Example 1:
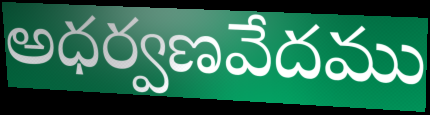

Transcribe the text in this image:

అధర్వణవేదము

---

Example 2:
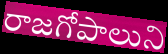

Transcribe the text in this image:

రాజగోపాలుని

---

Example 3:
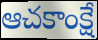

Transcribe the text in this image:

ఆచకాంక్షే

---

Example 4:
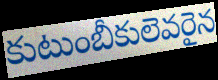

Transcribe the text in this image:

కుటుంబీకులెవరైన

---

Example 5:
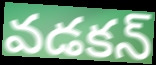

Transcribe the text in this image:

వడకన్